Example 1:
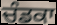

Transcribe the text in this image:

ਚੰਡਕਾ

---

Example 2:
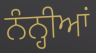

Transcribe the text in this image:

ਨੰਨ੍ਹੀਆਂ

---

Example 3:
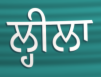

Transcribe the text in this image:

ਲ੍ਹੀਲਾ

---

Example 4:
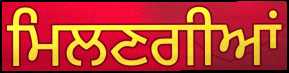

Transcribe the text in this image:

ਮਿਲਣਗੀਆਂ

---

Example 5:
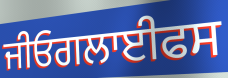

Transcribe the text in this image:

ਜੀਓਗਲਾਈਫਸ